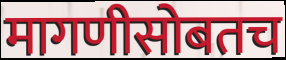
मागणीसोबतच